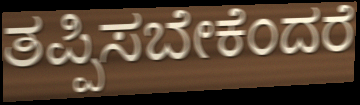
ತಪ್ಪಿಸಬೇಕೆಂದರೆ